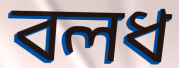
বলধ